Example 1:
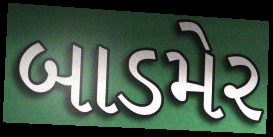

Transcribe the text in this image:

બાડમેર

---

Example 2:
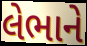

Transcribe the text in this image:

લેભાને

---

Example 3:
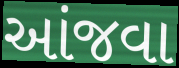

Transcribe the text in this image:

આંજવા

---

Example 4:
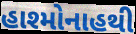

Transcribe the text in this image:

હાશ્મોનાહથી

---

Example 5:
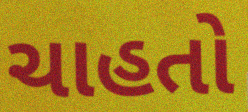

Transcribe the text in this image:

ચાહતો